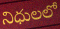
నిధులలో